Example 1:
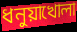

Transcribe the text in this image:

ধনুয়াখোলা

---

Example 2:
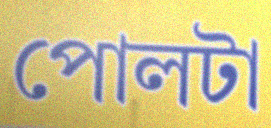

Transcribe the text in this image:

পোলটা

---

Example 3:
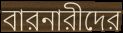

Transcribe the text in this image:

বারনারীদের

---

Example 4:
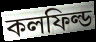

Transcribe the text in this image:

কলফিল্ড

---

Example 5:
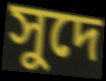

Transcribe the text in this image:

সুদে